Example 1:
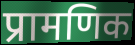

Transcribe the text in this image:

प्रामणिक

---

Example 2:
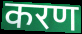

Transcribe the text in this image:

करण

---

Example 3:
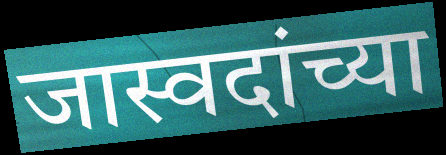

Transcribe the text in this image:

जास्वदांच्या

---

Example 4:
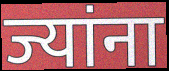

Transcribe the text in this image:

ज्यांना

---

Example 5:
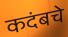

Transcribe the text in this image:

कदंबचे